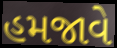
હમજાવે